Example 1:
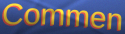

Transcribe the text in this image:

Commen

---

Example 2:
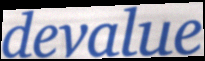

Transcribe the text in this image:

devalue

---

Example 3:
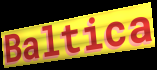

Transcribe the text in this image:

Baltica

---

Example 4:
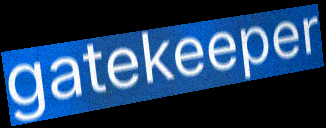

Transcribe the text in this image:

gatekeeper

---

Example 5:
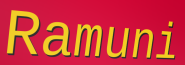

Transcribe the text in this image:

Ramuni